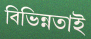
বিভিন্নতাই